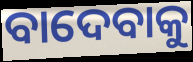
ବାଦେବାକୁ